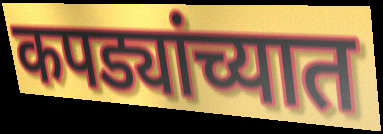
कपड्यांच्यात